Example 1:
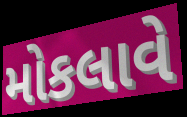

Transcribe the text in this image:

મોકલાવે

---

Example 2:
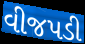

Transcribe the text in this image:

વીજપડી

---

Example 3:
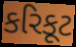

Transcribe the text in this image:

કરિકૂટ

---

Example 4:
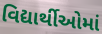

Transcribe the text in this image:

વિદ્યાર્થીઓમાં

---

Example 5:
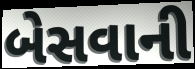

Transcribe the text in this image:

બેસવાની